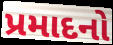
પ્રમાદનો